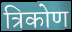
त्रिकोण